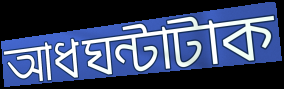
আধঘন্টাটাক